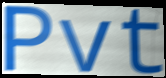
Pvt